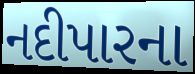
નદીપારના